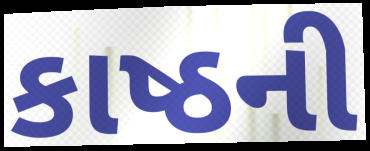
કાષ્ઠની